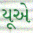
યૂએ